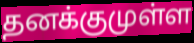
தனக்குமுள்ள